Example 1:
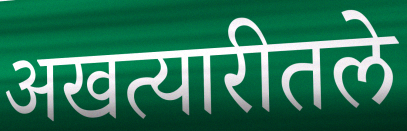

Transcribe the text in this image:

अखत्यारीतले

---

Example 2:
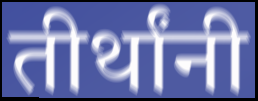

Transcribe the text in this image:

तीर्थांनी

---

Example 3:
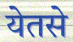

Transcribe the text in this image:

येतसे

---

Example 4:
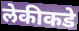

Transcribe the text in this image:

लेकीकडे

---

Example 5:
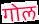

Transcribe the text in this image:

गोल